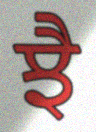
ਝੈ